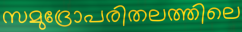
സമുദ്രോപരിതലത്തിലെ